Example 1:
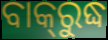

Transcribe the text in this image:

ବାକ୍‌ରୁଦ୍ଧ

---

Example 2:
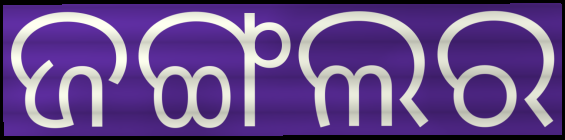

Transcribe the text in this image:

ଜଙ୍ଗଲର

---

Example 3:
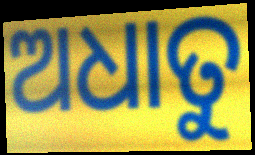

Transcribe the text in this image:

ଅଧାତୁ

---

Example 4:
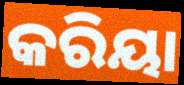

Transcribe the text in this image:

କରିୟା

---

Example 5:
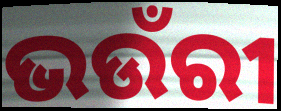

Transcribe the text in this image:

ଭଉଁରୀ